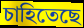
চাহিতেছে